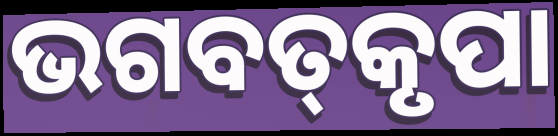
ଭଗବତ୍‌କୃପା